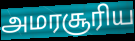
அமரசூரிய